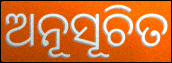
ଅନୂସୂଚିତ